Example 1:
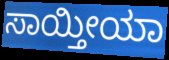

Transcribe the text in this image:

ಸಾಯ್ತೀಯಾ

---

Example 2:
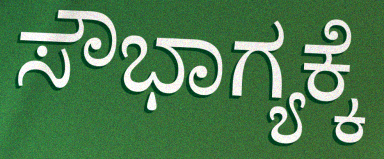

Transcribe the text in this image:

ಸೌಭಾಗ್ಯಕ್ಕೆ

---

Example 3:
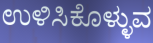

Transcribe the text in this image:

ಉಳಿಸಿಕೊಳ್ಳುವ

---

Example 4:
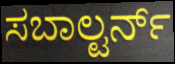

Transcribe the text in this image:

ಸಬಾಲ್ಟರ್ನ್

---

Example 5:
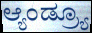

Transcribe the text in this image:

ಆ್ಯಂಡ್ರ್ಯೂ